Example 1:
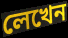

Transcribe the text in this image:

লেখেন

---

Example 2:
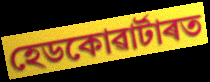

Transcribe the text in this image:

হেডকোৱাৰ্টাৰত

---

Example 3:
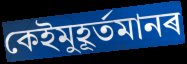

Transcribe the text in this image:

কেইমুহূৰ্তমানৰ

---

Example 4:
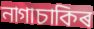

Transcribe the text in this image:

নাগাচাকিৰ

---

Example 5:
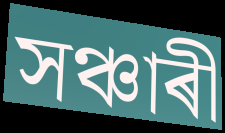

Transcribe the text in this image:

সঞ্চাৰী